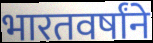
भारतवर्षांने